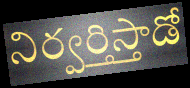
నిర్వర్తిస్తాడో